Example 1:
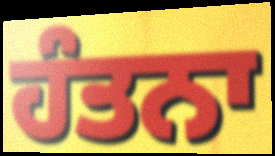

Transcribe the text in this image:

ਹੰਤਨਾ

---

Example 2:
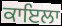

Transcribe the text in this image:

ਕਾਇਲਾ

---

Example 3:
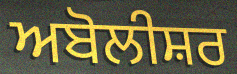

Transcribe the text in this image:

ਅਬੋਲੀਸ਼ਰ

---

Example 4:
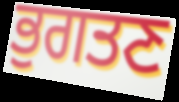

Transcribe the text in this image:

ਭੁਗਤਣ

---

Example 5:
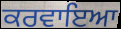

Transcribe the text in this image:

ਕਰਵਾਇਆ